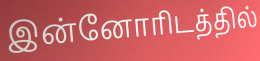
இன்னோரிடத்தில்